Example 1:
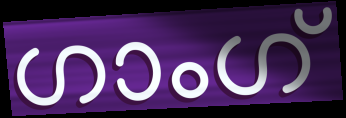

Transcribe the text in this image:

ഗാംഗ്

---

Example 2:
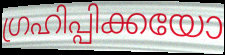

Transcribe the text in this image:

ഗ്രഹിപ്പിക്കയോ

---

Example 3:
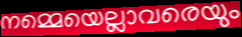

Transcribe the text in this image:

നമ്മെയെല്ലാവരെയും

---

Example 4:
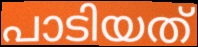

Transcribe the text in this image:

പാടിയത്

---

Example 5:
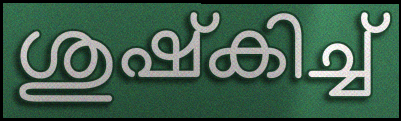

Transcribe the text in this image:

ശുഷ്കിച്ച്